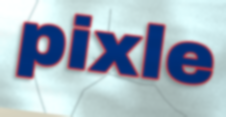
pixle